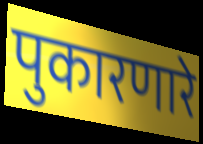
पुकारणारे